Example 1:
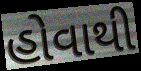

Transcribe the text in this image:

હોવાથી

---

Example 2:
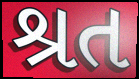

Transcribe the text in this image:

શ્રત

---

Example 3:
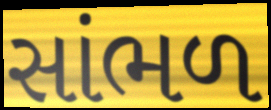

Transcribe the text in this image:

સાંભળ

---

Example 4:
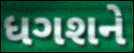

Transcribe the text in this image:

ધગશને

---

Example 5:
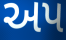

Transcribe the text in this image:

અપ